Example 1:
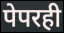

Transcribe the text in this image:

पेपरही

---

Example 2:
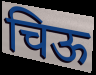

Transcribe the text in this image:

चिऊ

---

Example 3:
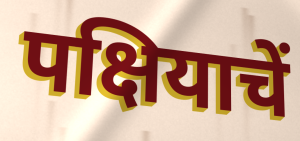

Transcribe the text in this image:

पक्षियाचें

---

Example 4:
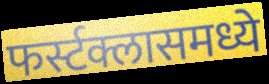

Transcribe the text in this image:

फर्स्टक्लासमध्ये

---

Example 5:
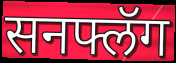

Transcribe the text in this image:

सनफ्लॅग